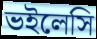
ভইলেসি